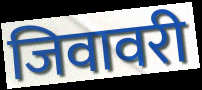
जिवावरी